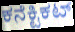
ಕನೆಕ್ಟಿಕಟ್